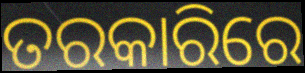
ତରକାରିରେ